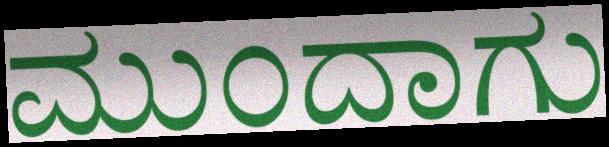
ಮುಂದಾಗು